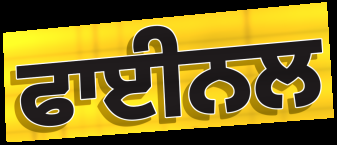
ਫਾਈਨਲ